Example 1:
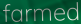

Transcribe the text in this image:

farmed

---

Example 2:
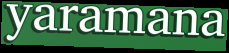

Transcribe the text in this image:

yaramana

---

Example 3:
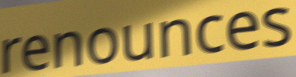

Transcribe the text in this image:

renounces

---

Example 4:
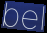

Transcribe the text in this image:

bel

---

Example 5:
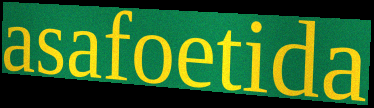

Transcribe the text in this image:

asafoetida